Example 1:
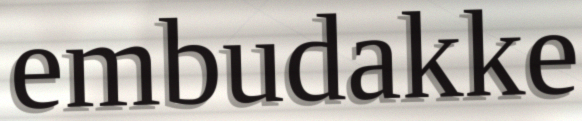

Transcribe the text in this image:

embudakke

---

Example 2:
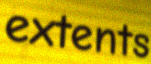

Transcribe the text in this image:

extents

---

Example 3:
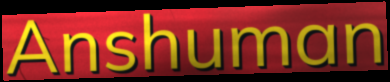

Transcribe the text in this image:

Anshuman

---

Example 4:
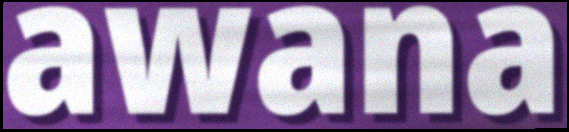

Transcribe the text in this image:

awana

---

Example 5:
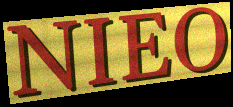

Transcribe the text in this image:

NIEO